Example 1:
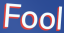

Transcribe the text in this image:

Fool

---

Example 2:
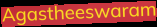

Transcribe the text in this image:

Agastheeswaram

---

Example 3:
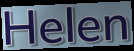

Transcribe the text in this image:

Helen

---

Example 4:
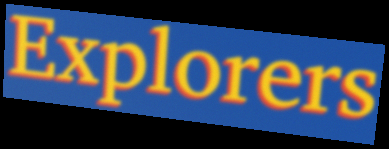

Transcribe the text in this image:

Explorers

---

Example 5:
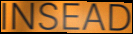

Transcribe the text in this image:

INSEAD